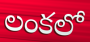
లంకలో